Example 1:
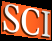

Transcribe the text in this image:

SCI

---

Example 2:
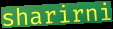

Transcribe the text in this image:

sharirni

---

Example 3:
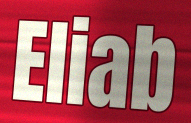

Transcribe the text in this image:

Eliab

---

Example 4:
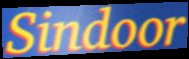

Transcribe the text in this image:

Sindoor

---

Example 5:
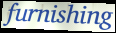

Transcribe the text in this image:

furnishing